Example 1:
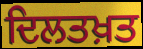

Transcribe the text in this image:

ਦਿਲਤਖ਼ਤ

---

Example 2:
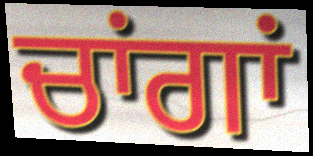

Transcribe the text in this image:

ਚਾਂਗਾਂ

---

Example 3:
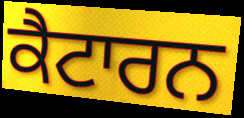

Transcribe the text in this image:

ਕੈਟਾਰਨ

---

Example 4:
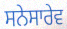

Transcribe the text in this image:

ਸਨੇਸਾਰੇਵ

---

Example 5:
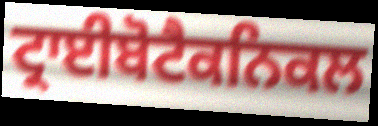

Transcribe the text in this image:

ਟ੍ਰਾਈਬੋਟੈਕਨਿਕਲ